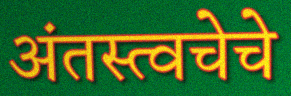
अंतस्त्वचेचे